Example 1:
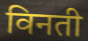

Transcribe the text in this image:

विनती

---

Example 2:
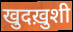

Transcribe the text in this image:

खुदख़ुशी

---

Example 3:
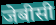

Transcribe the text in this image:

जेबीसी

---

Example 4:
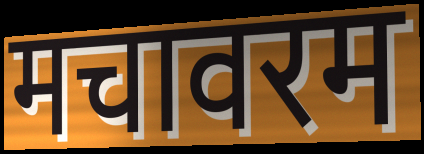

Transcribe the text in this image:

मचावरम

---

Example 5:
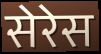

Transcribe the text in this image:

सेरेस